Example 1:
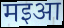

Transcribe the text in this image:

मइआ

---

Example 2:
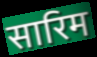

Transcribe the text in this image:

सारिम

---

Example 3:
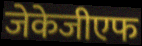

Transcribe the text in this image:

जेकेजीएफ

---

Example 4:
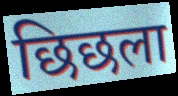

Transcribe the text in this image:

छिछला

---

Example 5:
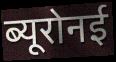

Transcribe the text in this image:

ब्यूरोनई